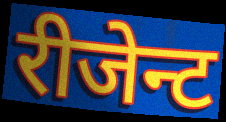
रीजेन्ट